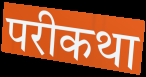
परीकथा